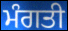
ਮੰਗਤੀ